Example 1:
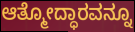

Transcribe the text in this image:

ಆತ್ಮೋದ್ಧಾರವನ್ನೂ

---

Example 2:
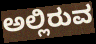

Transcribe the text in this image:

ಅಲ್ಲಿರುವ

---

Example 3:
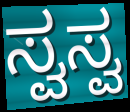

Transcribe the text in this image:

ಸ್ವಸ್ವ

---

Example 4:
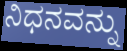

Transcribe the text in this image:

ನಿಧನವನ್ನು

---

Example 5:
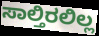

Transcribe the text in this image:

ಸಾಲ್ತಿರಲಿಲ್ಲ